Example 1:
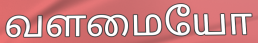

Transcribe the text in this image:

வளமையோ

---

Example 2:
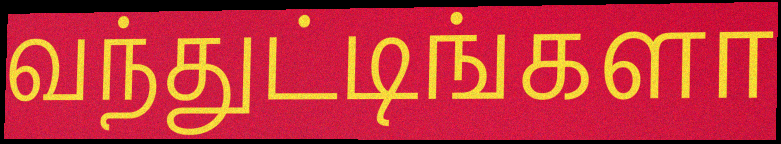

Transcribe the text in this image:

வந்துட்டிங்களா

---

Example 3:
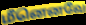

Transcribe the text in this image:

மீனெனவே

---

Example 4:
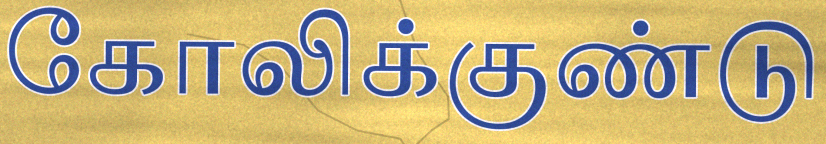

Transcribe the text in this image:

கோலிக்குண்டு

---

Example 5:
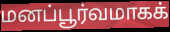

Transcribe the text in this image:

மனப்பூர்வமாகக்